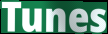
Tunes